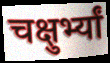
चक्षुर्भ्यां